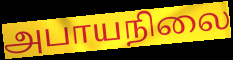
அபாயநிலை